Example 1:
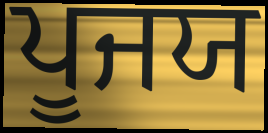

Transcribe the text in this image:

ਪੂਜਯ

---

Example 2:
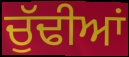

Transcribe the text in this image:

ਚੁੱਢੀਆਂ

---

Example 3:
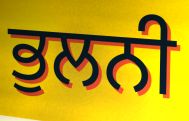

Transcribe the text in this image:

ਭੁਲਨੀ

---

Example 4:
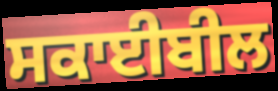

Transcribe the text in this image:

ਸਕਾਈਬੀਲ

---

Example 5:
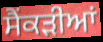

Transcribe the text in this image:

ਸੈਂਕੜੀਆਂ